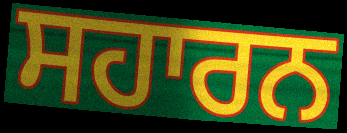
ਸਹਾਰਨ